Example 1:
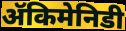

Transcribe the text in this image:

ॲकिमेनिडी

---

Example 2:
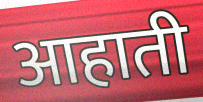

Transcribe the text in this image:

आहाती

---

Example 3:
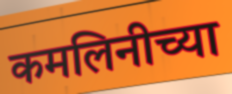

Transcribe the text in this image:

कमलिनीच्या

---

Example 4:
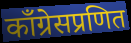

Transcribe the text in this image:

काँग्रेसप्रणित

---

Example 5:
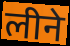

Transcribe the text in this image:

लीने